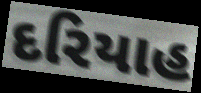
દરિયાહ